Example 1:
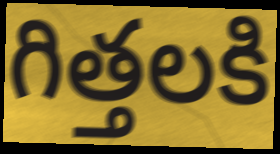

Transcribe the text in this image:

గిత్తలకి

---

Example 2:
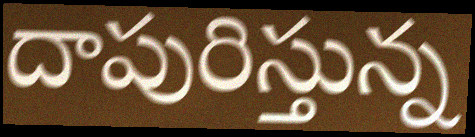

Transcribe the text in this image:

దాపురిస్తున్న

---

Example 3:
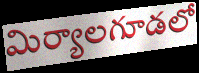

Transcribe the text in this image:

మిర్యాలగూడలో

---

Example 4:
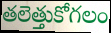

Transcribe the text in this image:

తలెత్తుకోగలం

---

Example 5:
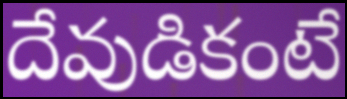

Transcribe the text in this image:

దేవుడికంటే